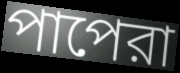
পাপেরা